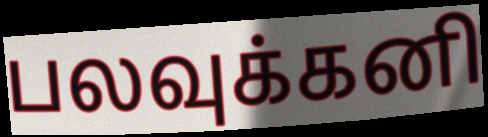
பலவுக்கனி